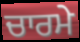
ਚਾਰਮੇ